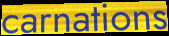
carnations